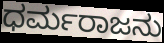
ಧರ್ಮರಾಜನು